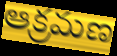
ఆక్రమణ